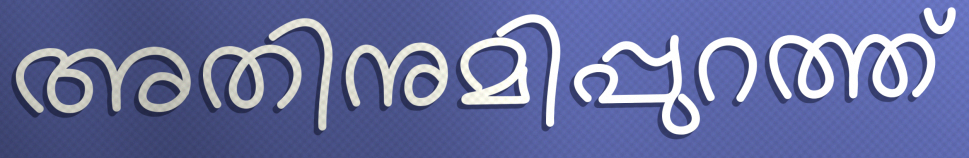
അതിനുമിപ്പുറത്ത്